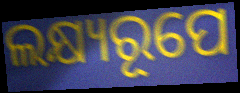
ଲକ୍ଷ୍ୟରୂପେ